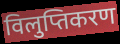
विलुप्तिकरण